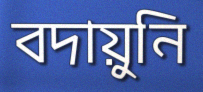
বদায়ুনি